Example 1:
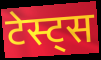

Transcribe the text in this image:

टेस्ट्स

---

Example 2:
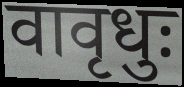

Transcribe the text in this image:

वावृधुः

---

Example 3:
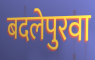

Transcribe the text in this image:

बदलेपुरवा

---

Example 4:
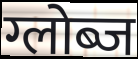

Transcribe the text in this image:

ग्लोब्ज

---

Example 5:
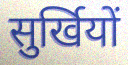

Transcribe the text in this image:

सुर्खियों